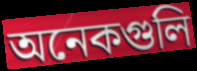
অনেকগুলি